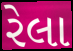
રેલા